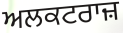
ਅਲਕਟਰਾਜ਼